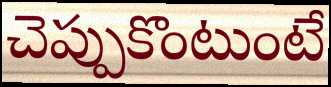
చెప్పుకొంటుంటే